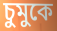
চুমুকে